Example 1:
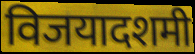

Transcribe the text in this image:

विजयादशमी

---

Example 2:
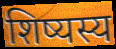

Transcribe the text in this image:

शिष्यस्य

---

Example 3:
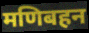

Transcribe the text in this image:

मणिबहन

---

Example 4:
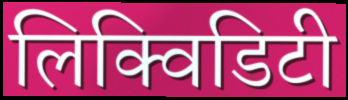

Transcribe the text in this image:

लिक्विडिटी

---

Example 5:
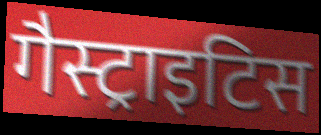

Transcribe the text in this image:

गैस्ट्राइटिस